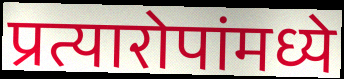
प्रत्यारोपांमध्ये